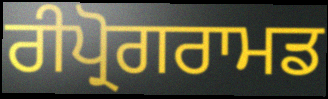
ਰੀਪ੍ਰੋਗਰਾਮਡ